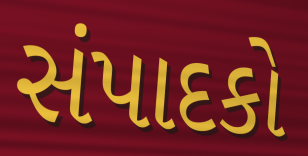
સંપાદકો